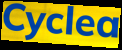
Cyclea